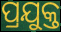
ପ୍ରଯୁକ୍ତ